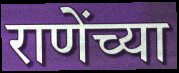
राणेंच्या